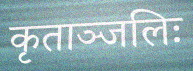
कृताञ्जलिः